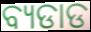
ବ୍ୟଡାଡ